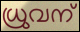
ധ്രുവന്